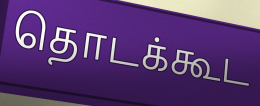
தொடக்கூட